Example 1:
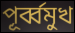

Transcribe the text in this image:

পূর্ব্বমুখ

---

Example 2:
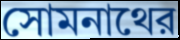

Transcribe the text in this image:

সোমনাথের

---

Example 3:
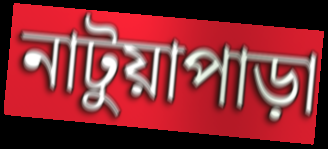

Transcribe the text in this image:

নাটুয়াপাড়া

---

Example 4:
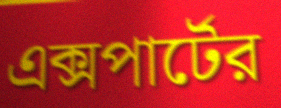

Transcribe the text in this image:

এক্সপার্টের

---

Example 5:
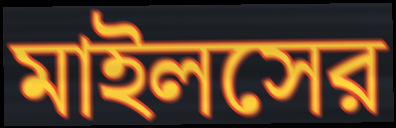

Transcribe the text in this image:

মাইলসের